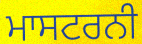
ਮਾਸਟਰਨੀ